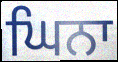
ਘਿਨਾ